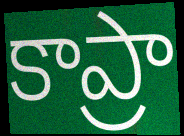
కాప్రా